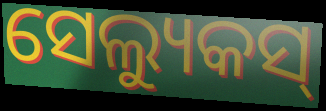
ସେଲ୍ୟୁକସ୍